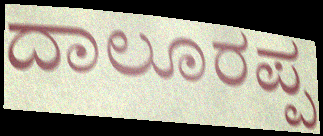
ದಾಲೂರಪ್ಪ